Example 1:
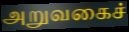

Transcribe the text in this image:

அறுவகைச்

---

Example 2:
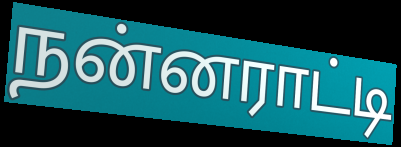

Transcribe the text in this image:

நன்னராட்டி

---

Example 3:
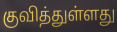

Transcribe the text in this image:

குவித்துள்ளது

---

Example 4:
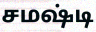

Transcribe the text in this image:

சமஷ்டி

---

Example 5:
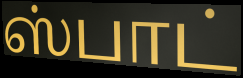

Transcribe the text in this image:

ஸ்பாட்